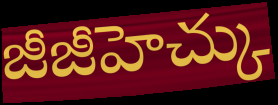
జీజీహెచ్కు